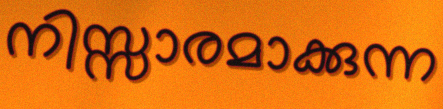
നിസ്സാരമാക്കുന്ന